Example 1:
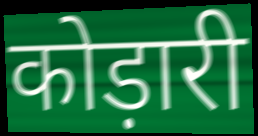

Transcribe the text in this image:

कोड़ारी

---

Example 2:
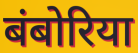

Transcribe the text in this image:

बंबोरिया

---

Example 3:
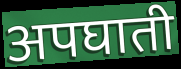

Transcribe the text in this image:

अपघाती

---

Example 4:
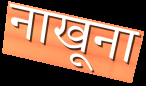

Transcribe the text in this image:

नाखूना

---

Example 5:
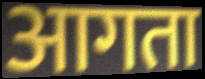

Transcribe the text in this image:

आगता